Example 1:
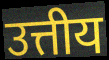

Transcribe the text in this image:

उत्तीय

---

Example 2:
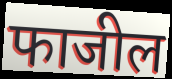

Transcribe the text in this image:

फाजील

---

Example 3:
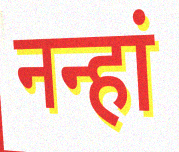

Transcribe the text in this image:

नन्हां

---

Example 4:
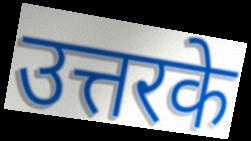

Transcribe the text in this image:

उत्तरके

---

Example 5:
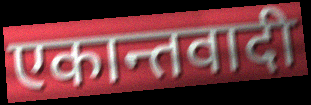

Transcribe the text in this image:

एकान्तवादी